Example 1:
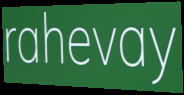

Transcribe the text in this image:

rahevay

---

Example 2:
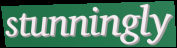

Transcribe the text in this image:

stunningly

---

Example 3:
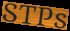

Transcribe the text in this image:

STPs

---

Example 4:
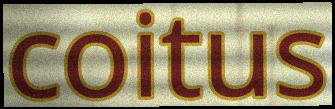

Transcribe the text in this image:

coitus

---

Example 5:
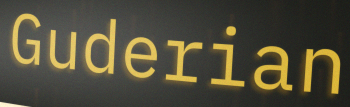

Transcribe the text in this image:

Guderian